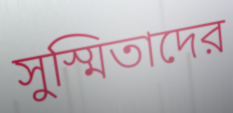
সুস্মিতাদের